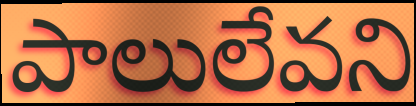
పాలులేవని